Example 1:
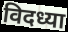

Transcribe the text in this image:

विदध्या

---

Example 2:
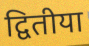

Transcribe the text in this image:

द्वितीया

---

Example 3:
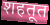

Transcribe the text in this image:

शहतूत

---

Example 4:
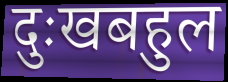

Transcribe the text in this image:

दुःखबहुल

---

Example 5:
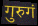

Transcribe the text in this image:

गुरुगं